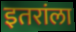
इतरांला